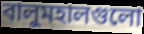
বালুমহালগুলো